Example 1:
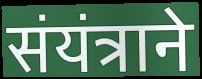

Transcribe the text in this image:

संयंत्राने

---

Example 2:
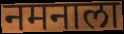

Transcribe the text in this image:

नमनाला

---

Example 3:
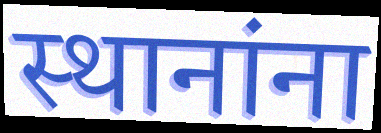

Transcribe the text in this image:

स्थानांना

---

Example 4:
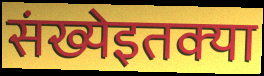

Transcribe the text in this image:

संख्येइतक्या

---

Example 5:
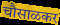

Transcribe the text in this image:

चौसाळकर